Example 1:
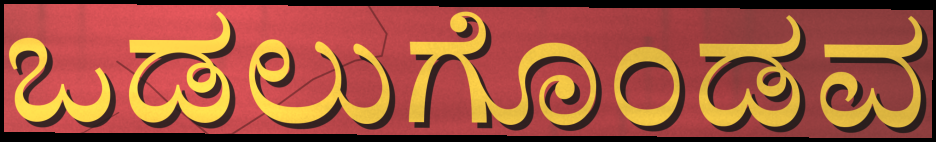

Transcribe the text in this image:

ಒಡಲುಗೊಂಡವ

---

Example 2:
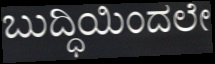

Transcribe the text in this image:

ಬುದ್ಧಿಯಿಂದಲೇ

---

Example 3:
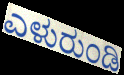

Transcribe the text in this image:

ಎಳುರುಂಡಿ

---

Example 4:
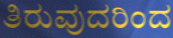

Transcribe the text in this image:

ತಿರುವುದರಿಂದ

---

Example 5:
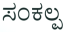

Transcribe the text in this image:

ಸಂಕಲ್ಪ